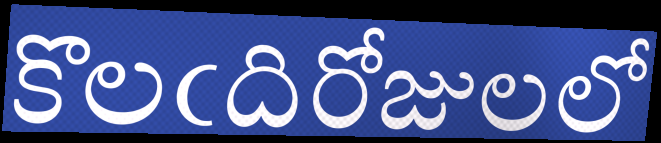
కొలఁదిరోజులలో